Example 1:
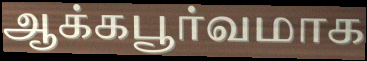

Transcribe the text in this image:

ஆக்கபூர்வமாக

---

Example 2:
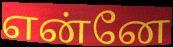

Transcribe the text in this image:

என்னே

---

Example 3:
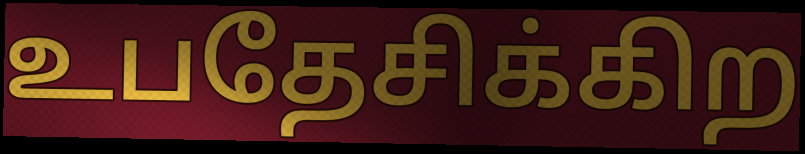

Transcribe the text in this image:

உபதேசிக்கிற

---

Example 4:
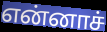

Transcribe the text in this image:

என்னாச்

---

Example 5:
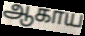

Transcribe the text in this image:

ஆகாய